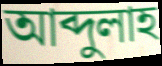
আব্দুলাহ